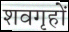
शवगृहों